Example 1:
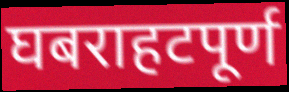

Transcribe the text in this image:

घबराहटपूर्ण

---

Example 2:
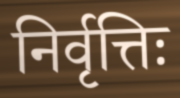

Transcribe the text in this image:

निर्वृत्तिः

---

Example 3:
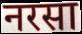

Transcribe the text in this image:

नरसा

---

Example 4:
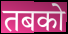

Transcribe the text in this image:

तबको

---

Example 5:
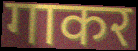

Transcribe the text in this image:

गाकर